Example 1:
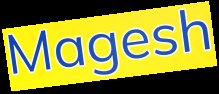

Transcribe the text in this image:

Magesh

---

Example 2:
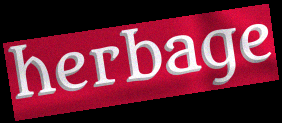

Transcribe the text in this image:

herbage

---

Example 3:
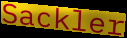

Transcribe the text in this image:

Sackler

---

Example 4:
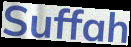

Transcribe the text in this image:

Suffah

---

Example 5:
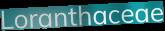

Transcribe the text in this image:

Loranthaceae